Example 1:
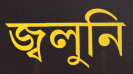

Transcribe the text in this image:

জ্বলুনি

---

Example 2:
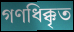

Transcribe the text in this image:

গণধিক্কৃত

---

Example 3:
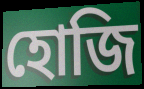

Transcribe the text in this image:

হোজি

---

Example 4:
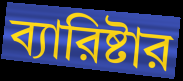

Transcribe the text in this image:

ব্যারিষ্টার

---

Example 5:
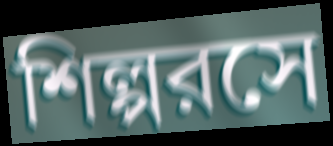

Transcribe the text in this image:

শিল্পরসে